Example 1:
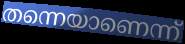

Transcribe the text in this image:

തന്നെയാണെന്ന്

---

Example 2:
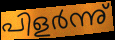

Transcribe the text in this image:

പിളർന്നു്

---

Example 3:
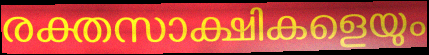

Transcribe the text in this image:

രക്തസാക്ഷികളെയും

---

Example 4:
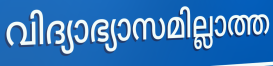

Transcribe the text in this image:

വിദ്യാഭ്യാസമില്ലാത്ത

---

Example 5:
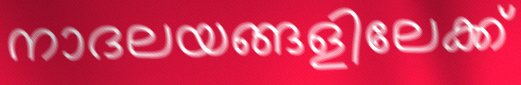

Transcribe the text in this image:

നാദലയങ്ങളിലേക്ക്